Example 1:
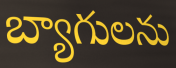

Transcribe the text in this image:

బ్యాగులను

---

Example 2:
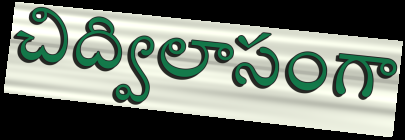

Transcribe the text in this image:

చిద్విలాసంగా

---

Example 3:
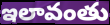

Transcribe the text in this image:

ఇలావంతు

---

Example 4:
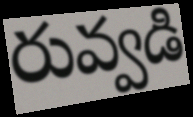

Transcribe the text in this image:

రువ్వడి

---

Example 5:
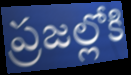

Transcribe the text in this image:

ప్రజల్లోకి